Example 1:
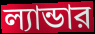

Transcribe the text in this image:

ল্যান্ডার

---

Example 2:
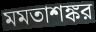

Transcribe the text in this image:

মমতাশঙ্কর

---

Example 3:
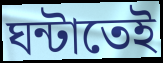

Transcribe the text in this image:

ঘন্টাতেই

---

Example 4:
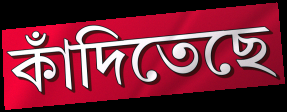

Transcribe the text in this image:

কাঁদিতেছে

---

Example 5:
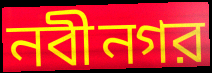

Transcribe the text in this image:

নবীনগর